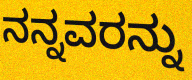
ನನ್ನವರನ್ನು